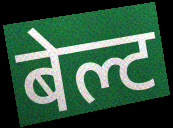
बेल्ट